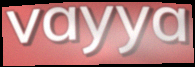
vayya